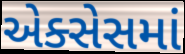
એક્સેસમાં